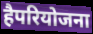
हैपरियोजना